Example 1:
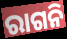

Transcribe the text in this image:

ରାଗନି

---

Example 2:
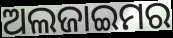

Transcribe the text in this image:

ଅଲଜାଇମର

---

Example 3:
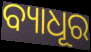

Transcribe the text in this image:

ବ୍ୟାଧୂର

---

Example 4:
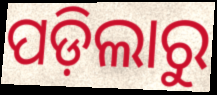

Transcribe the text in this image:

ପଡ଼ିଲାରୁ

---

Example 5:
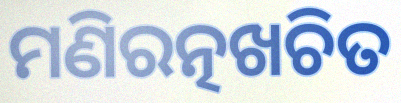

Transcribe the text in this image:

ମଣିରତ୍ନଖଚିତ